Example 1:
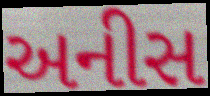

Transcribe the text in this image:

અનીસ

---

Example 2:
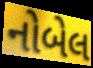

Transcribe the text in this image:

નોબેલ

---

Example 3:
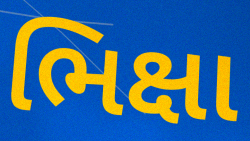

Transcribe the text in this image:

ભિક્ષા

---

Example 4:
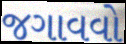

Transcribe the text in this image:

જગાવવો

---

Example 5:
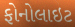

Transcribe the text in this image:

ફોનોલાઇટ